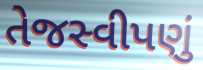
તેજસ્વીપણું